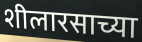
शीलारसाच्या